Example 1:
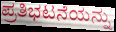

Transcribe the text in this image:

ಪ್ರತಿಭಟನೆಯನ್ನು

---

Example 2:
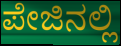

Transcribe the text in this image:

ಪೇಜಿನಲ್ಲಿ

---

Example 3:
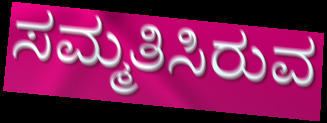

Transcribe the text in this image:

ಸಮ್ಮತಿಸಿರುವ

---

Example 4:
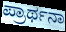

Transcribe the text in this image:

ಪ್ರಾರ್ಥನಾ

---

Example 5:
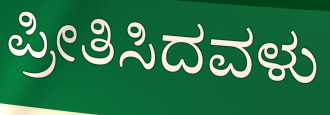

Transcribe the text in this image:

ಪ್ರೀತಿಸಿದವಳು